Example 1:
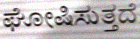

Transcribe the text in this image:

ಘೋಷಿಸುತ್ತದೆ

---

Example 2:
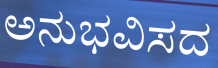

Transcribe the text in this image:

ಅನುಭವಿಸದ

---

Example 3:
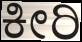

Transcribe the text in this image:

ಕೀರಿ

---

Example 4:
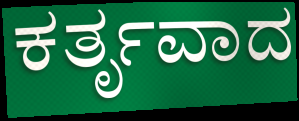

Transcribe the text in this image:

ಕರ್ತೃವಾದ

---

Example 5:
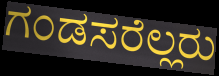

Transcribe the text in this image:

ಗಂಡಸರೆಲ್ಲರು